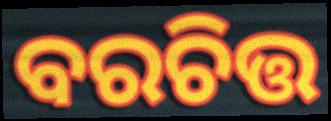
ବରଚିତ୍ତ